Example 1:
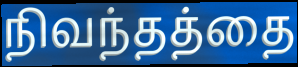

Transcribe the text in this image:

நிவந்தத்தை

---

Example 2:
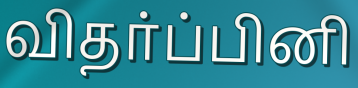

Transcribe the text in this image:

விதர்ப்பினி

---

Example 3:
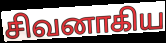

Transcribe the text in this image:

சிவனாகிய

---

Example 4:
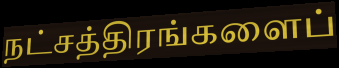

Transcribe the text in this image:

நட்சத்திரங்களைப்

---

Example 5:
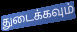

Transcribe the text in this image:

துடைக்கவும்